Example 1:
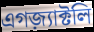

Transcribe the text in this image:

এগজ়্যাক্টলি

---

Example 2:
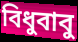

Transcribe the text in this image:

বিধুবাবু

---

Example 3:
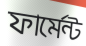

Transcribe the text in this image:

ফার্মেন্ট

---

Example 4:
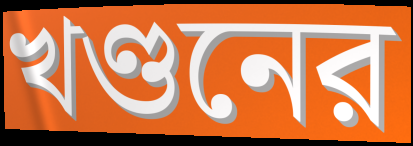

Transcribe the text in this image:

খণ্ডনের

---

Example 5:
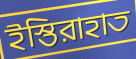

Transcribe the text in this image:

ইস্তিরাহাত